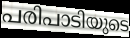
പരിപാടിയുടെ